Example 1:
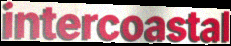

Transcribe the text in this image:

intercoastal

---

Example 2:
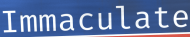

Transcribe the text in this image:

Immaculate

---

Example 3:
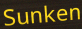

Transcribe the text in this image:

Sunken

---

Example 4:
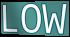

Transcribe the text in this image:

LOW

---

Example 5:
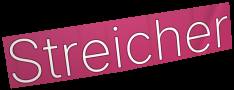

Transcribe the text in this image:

Streicher